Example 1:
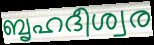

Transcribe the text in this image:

ബൃഹദീശ്വര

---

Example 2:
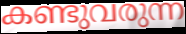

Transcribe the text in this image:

കണ്ടുവരുന്ന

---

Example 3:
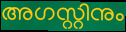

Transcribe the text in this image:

അഗസ്റ്റിനും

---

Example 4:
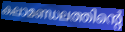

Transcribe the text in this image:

കലാമണ്ഡലത്തിന്റെ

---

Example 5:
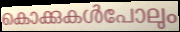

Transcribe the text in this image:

കൊക്കുകൾപോലും